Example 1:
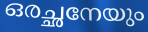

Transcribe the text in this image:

ഒരച്ഛനേയും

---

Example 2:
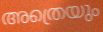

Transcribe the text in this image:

അത്രെയും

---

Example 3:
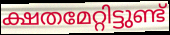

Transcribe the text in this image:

ക്ഷതമേറ്റിട്ടുണ്ട്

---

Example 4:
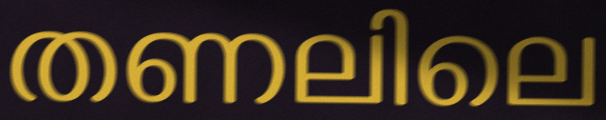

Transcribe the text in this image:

തണലിലെ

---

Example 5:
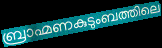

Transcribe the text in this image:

ബ്രാഹ്മണകുടുംബത്തിലെ